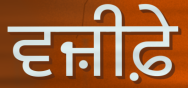
ਵਜ਼ੀਫ਼ੇ